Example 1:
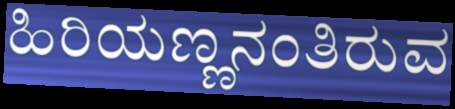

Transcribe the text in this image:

ಹಿರಿಯಣ್ಣನಂತಿರುವ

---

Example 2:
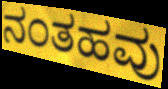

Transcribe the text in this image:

ನಂತಹವು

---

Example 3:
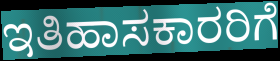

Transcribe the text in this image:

ಇತಿಹಾಸಕಾರರಿಗೆ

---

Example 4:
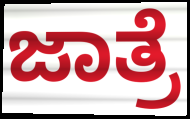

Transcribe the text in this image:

ಜಾತ್ರೆ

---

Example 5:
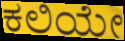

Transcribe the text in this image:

ಕಲಿಯೇ